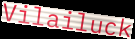
Vilailuck